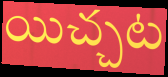
యిచ్చట